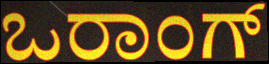
ಒರಾಂಗ್